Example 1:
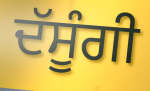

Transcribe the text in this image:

ਦੱਸੂੰਗੀ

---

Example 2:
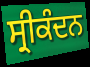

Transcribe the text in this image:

ਸ੍ਰੀਕੰਦਨ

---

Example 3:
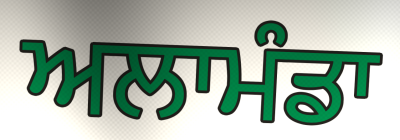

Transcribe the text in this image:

ਅਲਾਮੰਡਾ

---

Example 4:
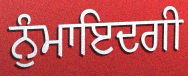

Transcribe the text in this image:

ਨੁੰਮਾਇਦਗੀ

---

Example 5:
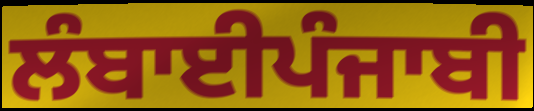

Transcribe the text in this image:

ਲੰਬਾਈਪੰਜਾਬੀ